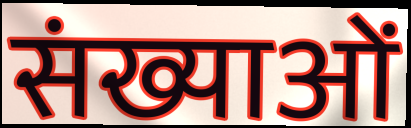
संख्याओं